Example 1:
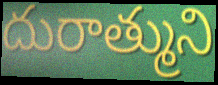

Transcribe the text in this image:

దురాత్ముని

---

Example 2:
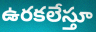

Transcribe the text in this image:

ఉరకలేస్తూ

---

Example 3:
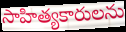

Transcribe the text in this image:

సాహిత్యకారులను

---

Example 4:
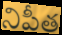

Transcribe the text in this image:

నిపీత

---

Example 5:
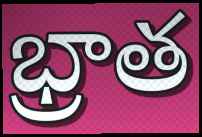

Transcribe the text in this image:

భ్రాత